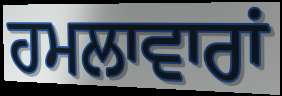
ਹਮਲਾਵਾਰਾਂ